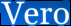
Vero